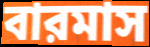
বারমাস